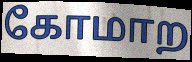
கோமாற